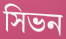
সিভন